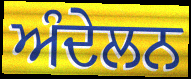
ਅੰਦੇਲਨ